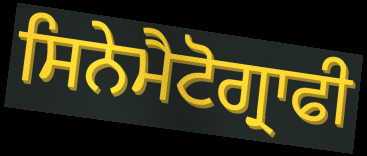
ਸਿਨੇਮੈਟੋਗ੍ਰਾਫੀ